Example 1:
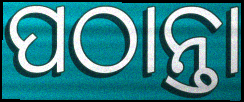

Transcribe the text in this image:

ପଠାନ୍ତା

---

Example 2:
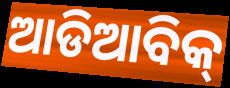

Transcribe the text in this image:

ଆଡିଆବିକ୍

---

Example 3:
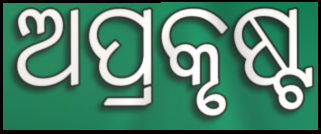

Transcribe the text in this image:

ଅପ୍ରକୃଷ୍ଟ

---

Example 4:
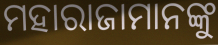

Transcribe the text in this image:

ମହାରାଜାମାନଙ୍କୁ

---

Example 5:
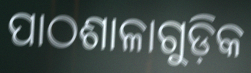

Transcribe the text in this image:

ପାଠଶାଳାଗୁଡ଼ିକ